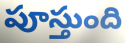
పూస్తుంది